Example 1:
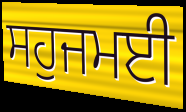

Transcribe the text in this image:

ਸਹੁਜਮਈ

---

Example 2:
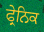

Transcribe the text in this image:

ਫ੍ਰੇਨਿਕ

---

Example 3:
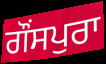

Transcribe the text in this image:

ਗੌਂਸਪੁਰਾ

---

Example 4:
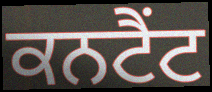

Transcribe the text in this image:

ਕਨਟੈਂਟ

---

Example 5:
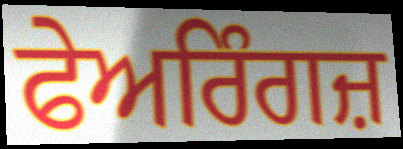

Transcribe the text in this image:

ਫੇਅਰਿੰਗਜ਼